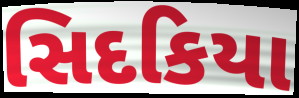
સિદકિયા